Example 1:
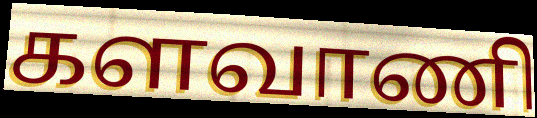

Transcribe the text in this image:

களவாணி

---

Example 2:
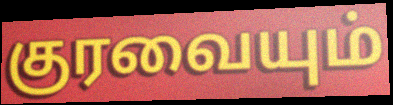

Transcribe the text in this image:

குரவையும்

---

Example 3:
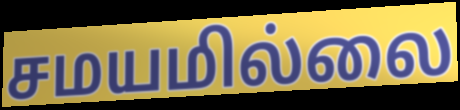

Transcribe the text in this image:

சமயமில்லை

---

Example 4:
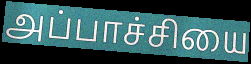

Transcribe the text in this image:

அப்பாச்சியை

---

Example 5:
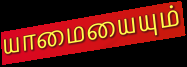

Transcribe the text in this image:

யாமையையும்